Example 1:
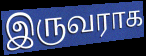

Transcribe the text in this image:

இருவராக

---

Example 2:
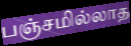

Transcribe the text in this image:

பஞ்சமில்லாத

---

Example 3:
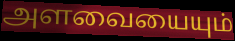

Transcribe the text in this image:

அளவையையும்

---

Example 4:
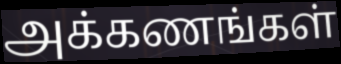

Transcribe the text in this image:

அக்கணங்கள்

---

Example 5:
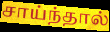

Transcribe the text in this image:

சாய்ந்தால்